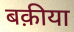
बक़ीया